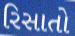
રિસાતો